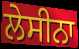
ਲੇਸੀਨਾ